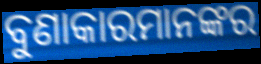
ବୁଣାକାରମାନଙ୍କର